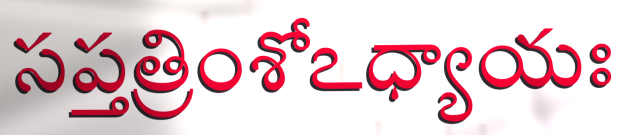
సప్తత్రింశోఽధ్యాయః